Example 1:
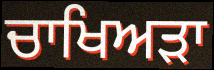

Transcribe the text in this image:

ਚਾਖਿਅੜਾ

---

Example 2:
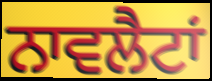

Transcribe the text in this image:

ਨਾਵਲੈਟਾਂ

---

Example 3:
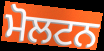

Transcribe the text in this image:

ਮੋਲਟਨ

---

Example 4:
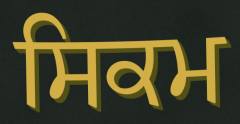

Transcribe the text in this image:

ਸਿਕਮ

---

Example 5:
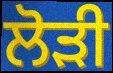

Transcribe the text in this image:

ਲੋੜੀ